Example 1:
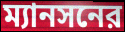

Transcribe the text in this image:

ম্যানসনের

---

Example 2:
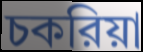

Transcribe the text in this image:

চকরিয়া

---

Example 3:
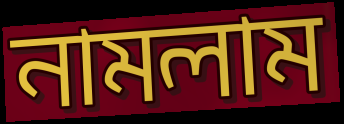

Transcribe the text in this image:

নামলাম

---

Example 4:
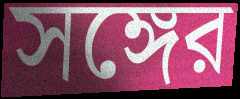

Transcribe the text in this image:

সঙ্গের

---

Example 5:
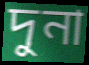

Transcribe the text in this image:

দুনা